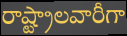
రాష్ట్రాలవారీగా